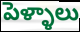
పెళ్ళాలు